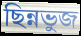
ছিন্নভুজ